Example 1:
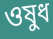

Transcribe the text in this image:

ওষুধ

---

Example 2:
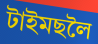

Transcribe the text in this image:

টাইমছলৈ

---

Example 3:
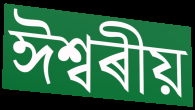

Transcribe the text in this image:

ঈশ্বৰীয়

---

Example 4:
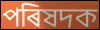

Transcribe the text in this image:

পৰিষদক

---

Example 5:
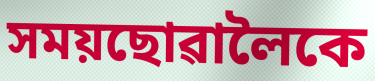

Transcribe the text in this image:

সময়ছোৱালৈকে